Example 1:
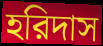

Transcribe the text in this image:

হরিদাস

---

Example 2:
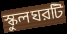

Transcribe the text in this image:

স্কুলঘরটি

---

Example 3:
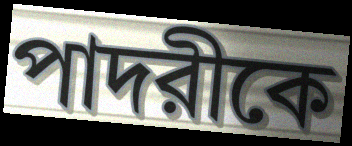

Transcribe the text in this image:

পাদরীকে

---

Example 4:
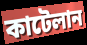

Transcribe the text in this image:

কাটেলান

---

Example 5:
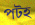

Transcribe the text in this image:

পটহ